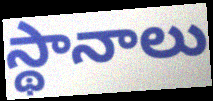
స్థానాలు